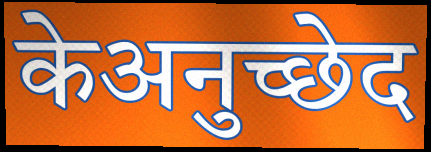
केअनुच्छेद